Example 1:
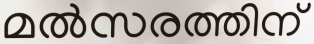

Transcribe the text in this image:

മൽസരത്തിന്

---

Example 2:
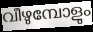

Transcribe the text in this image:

വീഴുമ്പോളും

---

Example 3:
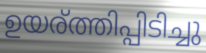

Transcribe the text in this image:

ഉയര്ത്തിപ്പിടിച്ചു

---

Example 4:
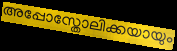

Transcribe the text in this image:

അപ്പോസ്തോലിക്കയായും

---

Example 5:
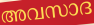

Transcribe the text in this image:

അവസാദ